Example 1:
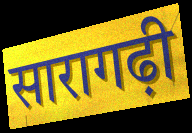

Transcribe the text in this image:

सारागढ़ी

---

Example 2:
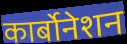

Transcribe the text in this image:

कार्बोनेशन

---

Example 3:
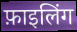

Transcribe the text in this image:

फ़ाइलिंग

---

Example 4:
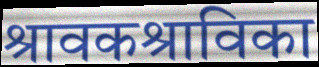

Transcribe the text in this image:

श्रावकश्राविका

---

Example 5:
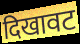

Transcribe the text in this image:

दिखावट